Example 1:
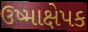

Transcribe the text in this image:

ઉષ્માક્ષેપક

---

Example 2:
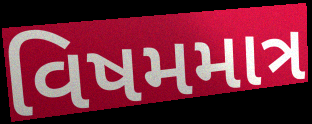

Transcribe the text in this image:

વિષમમાત્ર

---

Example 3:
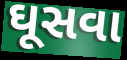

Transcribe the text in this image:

ઘૂસવા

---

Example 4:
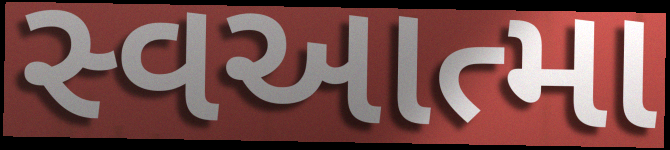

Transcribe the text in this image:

સ્વઆત્મા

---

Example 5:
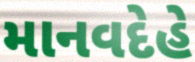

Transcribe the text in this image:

માનવદેહે